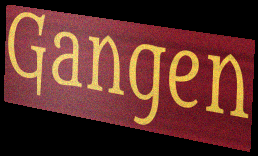
Gangen